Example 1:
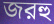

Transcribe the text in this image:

জরহু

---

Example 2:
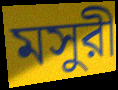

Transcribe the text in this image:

মসুরী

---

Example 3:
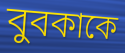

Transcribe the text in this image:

বুবকাকে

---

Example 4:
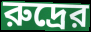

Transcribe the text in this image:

রুদ্রের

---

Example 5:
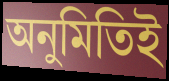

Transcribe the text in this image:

অনুমিতিই